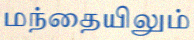
மந்தையிலும்